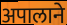
अपालाने